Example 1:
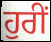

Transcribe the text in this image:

ਹੁਰੀਂ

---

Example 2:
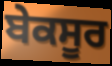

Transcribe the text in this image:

ਬੇਕਸੂਰ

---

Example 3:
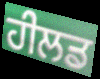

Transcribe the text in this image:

ਹੀਲਡ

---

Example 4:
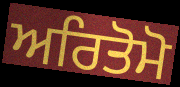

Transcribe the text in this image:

ਅਰਿਤੋਮੋ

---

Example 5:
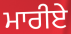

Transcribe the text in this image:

ਮਾਰੀਏ